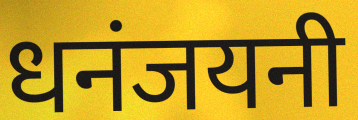
धनंजयनी